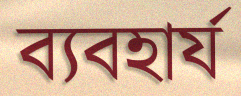
ব্যবহার্য